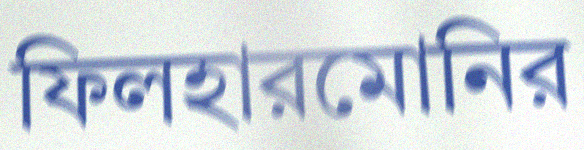
ফিলহারমোনির